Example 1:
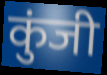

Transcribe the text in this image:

कुंजी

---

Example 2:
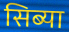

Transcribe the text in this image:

सिब्या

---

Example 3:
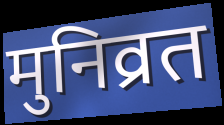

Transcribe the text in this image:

मुनिव्रत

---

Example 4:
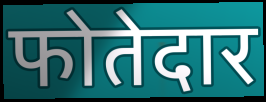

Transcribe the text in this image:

फोतेदार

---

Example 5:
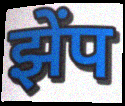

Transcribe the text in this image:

झेंप